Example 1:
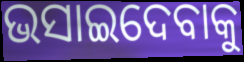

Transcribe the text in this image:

ଭସାଇଦେବାକୁ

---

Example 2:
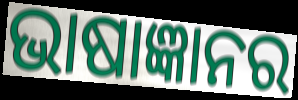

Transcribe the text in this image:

ଭାଷାଜ୍ଞାନର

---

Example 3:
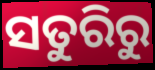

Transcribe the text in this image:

ସତୁରିରୁ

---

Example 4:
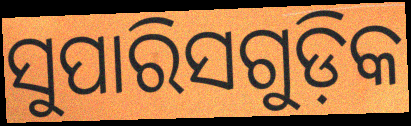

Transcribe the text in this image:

ସୁପାରିସଗୁଡ଼ିକ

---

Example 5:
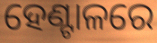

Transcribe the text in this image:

ହେଣ୍ଟାଳରେ